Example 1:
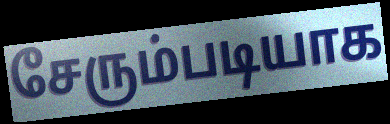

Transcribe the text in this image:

சேரும்படியாக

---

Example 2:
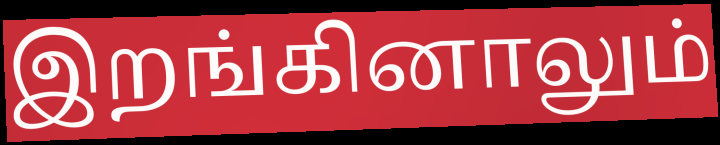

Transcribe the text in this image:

இறங்கினாலும்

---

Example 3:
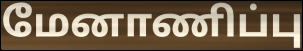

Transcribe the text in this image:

மேனாணிப்பு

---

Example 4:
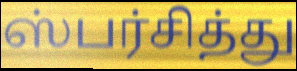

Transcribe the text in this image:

ஸ்பர்சித்து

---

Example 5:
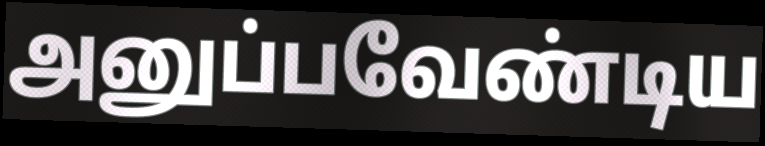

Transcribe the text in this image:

அனுப்பவேண்டிய